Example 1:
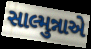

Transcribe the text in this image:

સાલ્મુન્નાએ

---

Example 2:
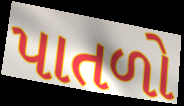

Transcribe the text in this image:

પાતળો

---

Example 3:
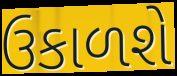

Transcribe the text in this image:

ઉકાળશે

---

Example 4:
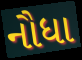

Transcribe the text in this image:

નૌધા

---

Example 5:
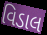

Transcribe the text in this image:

વિડાલ